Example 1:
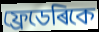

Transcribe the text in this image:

ফ্ৰেডেৰিকে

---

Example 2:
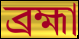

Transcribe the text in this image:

ব্ৰহ্মা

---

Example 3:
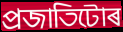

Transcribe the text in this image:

প্ৰজাতিটোৰ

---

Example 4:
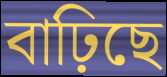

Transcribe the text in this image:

বাঢ়িছে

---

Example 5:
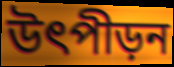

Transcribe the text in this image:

উৎপীড়ন